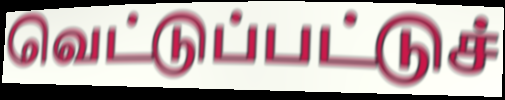
வெட்டுப்பட்டுச்